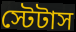
স্টেটাস